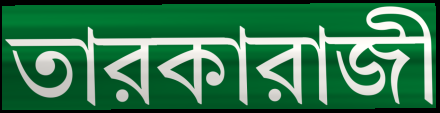
তারকারাজী